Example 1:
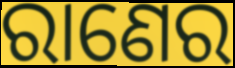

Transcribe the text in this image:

ରାଣେର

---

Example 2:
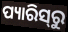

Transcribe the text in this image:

ପ୍ୟାରିସ୍‌ରୁ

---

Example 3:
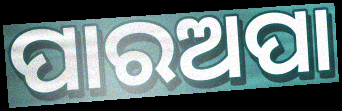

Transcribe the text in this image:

ପାରଅପା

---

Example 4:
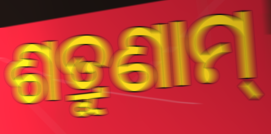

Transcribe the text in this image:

ଶତ୍ରୁଣାମ୍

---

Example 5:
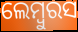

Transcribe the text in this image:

ଲେମ୍ବୁରସ